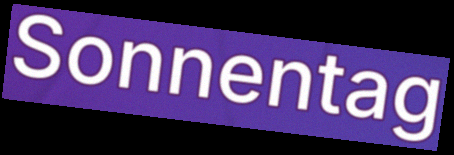
Sonnentag